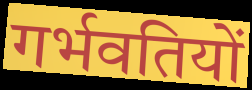
गर्भवतियों